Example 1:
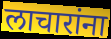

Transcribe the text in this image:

लाचारांना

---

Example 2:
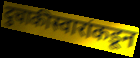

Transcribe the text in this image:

दुचाकीस्वारांकडून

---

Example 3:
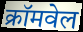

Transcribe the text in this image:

क्रॉमवेल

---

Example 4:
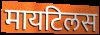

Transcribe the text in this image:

मायटिलस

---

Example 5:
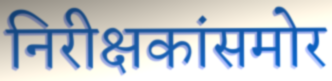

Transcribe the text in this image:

निरीक्षकांसमोर